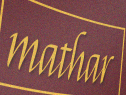
mathar